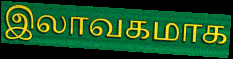
இலாவகமாக